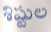
శిష్టుల